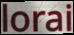
lorai